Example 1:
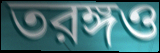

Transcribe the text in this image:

তরঙ্গও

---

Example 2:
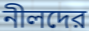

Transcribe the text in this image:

নীলদের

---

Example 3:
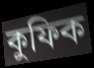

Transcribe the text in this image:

কুফিক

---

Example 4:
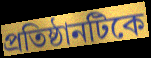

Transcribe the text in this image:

প্রতিষ্ঠানটিকে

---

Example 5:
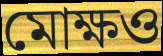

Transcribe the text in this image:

মোক্ষও